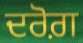
ਦਰੋਗ਼